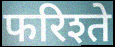
फरिश्ते